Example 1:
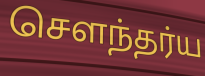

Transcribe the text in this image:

செளந்தர்ய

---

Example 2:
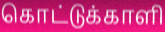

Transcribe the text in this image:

கொட்டுக்காளி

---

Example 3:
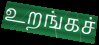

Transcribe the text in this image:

உறங்கச்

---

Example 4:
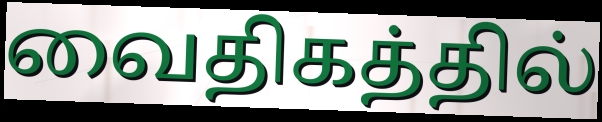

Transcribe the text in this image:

வைதிகத்தில்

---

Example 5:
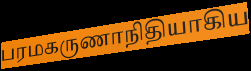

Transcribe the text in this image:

பரமகருணாநிதியாகிய